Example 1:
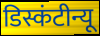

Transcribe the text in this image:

डिस्कंटीन्यू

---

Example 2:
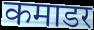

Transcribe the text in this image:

कमाडर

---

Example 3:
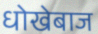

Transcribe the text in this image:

धोखेबाज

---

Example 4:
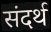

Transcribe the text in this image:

संदर्थ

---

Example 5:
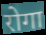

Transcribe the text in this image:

रोगा